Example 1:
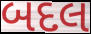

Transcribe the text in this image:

બદલ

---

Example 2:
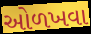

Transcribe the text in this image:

ઓળખવા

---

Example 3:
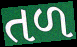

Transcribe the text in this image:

તળ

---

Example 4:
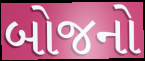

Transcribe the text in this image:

બોજનો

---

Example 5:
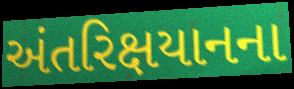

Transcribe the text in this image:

અંતરિક્ષયાનના